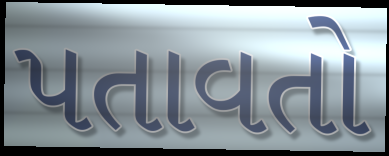
પતાવતો